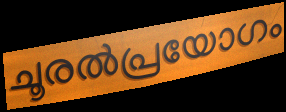
ചൂരൽപ്രയോഗം